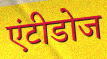
एंटीडोज